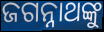
ଜଗନ୍ନାଥଙ୍କୁ